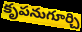
కృపనుగూర్చి